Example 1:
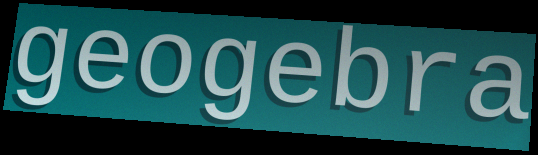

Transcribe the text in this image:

geogebra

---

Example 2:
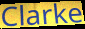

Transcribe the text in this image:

Clarke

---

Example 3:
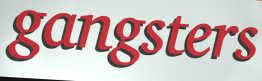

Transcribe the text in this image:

gangsters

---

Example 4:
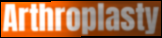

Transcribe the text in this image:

Arthroplasty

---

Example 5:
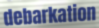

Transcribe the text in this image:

debarkation